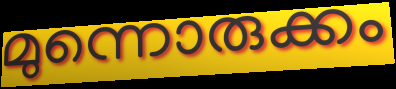
മുന്നൊരുക്കം